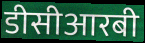
डीसीआरबी